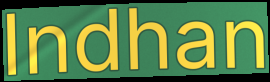
Indhan